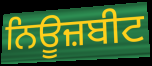
ਨਿਊਜ਼ਬੀਟ